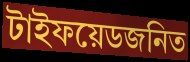
টাইফয়েডজনিত